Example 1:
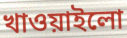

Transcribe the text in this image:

খাওয়াইলো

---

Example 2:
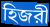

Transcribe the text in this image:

হিজরী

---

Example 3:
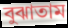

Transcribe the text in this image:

বুঝাতাম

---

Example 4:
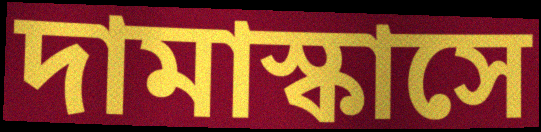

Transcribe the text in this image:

দামাস্কাসে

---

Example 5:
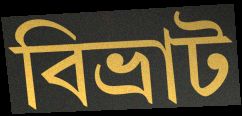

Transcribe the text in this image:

বিভ্রাট